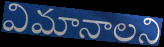
విమానాలని